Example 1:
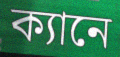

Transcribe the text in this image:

ক্যানে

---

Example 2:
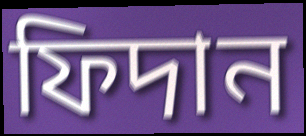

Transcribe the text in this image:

ফিদান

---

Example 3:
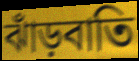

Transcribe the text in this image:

ঝাঁড়বাতি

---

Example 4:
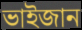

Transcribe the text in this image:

ভাইজান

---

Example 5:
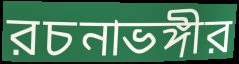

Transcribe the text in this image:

রচনাভঙ্গীর